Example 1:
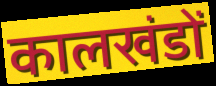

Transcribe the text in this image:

कालखंडों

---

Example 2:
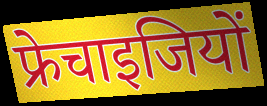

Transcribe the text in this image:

फ्रेचाइजियों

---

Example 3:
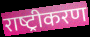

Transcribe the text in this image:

राष्ट्रीकरण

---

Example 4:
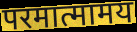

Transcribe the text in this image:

परमात्मामय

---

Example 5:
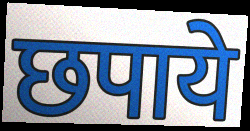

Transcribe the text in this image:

छपाये